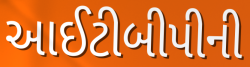
આઈટીબીપીની